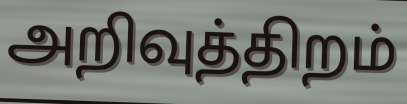
அறிவுத்திறம்